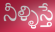
నీళ్ళిస్తే